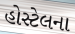
હોસ્ટેલના